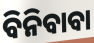
ବିନିବାବା